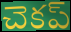
చెకప్